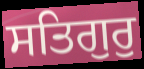
ਸਤਿਗੁਰੁ